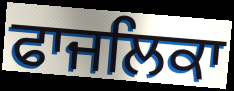
ਫਾਜਲਿਕਾ